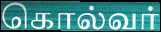
கொல்வர்